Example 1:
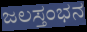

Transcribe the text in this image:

ಜಲಸ್ತಂಭನ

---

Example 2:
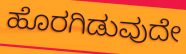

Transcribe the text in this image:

ಹೊರಗಿಡುವುದೇ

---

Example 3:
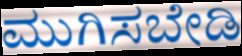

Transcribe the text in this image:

ಮುಗಿಸಬೇಡಿ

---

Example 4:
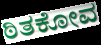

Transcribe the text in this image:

ಠಿತಕೋವ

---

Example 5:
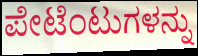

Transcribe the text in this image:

ಪೇಟೆಂಟುಗಳನ್ನು